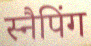
स्नैपिंग